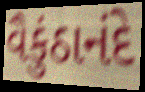
વૈકુંઠાનંદે